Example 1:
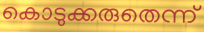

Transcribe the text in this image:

കൊടുക്കരുതെന്ന്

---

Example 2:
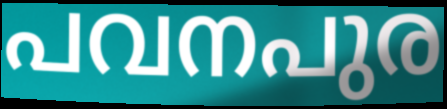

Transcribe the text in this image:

പവനപുര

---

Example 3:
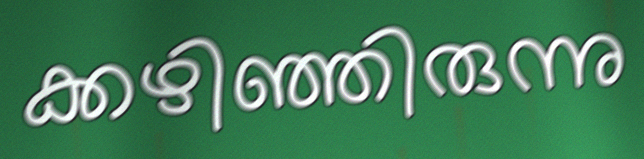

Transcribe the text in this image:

ക്കഴിഞ്ഞിരുന്നു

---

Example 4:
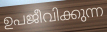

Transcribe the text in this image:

ഉപജീവിക്കുന്ന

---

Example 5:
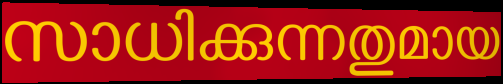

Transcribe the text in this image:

സാധിക്കുന്നതുമായ